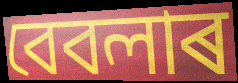
বেবলাৰ